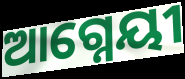
ଆଗ୍ନେୟୀ